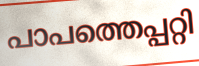
പാപത്തെപ്പറ്റി